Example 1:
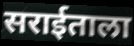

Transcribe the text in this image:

सराईताला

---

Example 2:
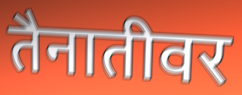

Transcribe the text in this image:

तैनातीवर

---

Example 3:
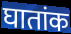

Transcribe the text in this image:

घातांक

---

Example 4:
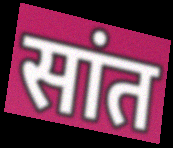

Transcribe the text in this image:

सांत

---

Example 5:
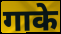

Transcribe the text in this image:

गाके